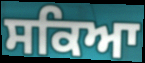
ਸਕਿਆ